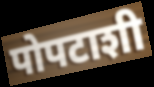
पोपटाशी